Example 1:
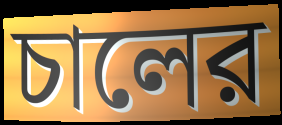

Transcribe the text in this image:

চালের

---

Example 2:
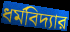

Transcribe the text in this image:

ধর্মবিদ্যার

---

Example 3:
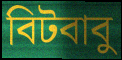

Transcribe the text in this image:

বিটবাবু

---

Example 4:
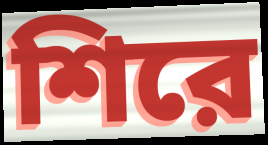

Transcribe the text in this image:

শিরে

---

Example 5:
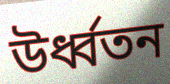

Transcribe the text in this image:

উর্ধ্বতন